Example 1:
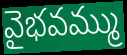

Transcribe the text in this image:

వైభవమ్ము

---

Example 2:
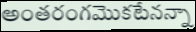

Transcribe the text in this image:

అంతరంగమొకటేనన్నా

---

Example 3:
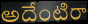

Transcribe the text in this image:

అదేంటిరా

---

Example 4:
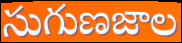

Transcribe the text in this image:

సుగుణజాల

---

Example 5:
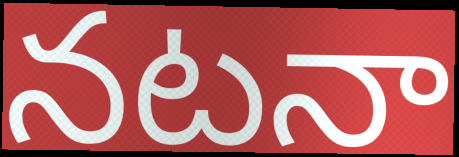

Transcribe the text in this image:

నటనా